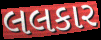
લલકાર